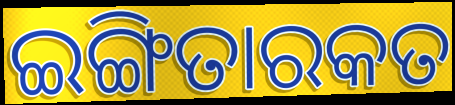
ଇଙ୍ଗିତାରକତ